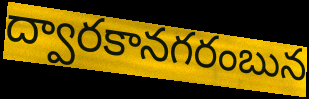
ద్వారకానగరంబున